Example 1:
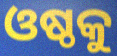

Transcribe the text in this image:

ଓଷ୍ଠକୁ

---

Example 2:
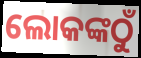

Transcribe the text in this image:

ଲୋକଙ୍କଠୁଁ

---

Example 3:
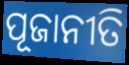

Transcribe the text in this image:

ପୂଜାନୀତି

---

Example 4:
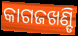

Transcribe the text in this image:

କାଗଜଖଣ୍ଡି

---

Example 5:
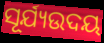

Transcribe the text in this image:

ସୂର୍ଯ୍ୟଉଦୟ